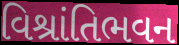
વિશ્રાંતિભવન